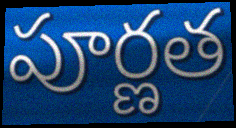
పూర్ణత